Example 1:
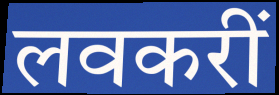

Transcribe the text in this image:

लवकरीं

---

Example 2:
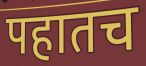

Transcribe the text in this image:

पहातच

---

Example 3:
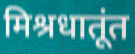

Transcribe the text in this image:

मिश्रधातूंत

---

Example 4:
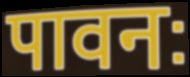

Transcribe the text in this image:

पावनः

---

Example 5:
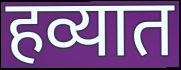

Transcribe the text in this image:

हव्‍यात